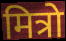
मित्रो